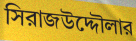
সিরাজউদ্দৌলার